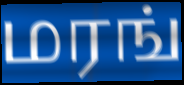
மரங்